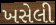
ખસેલી